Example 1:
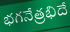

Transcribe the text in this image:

భగనేత్రభిదే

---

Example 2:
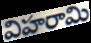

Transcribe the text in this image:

విహరామి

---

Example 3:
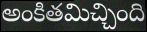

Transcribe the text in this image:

అంకితమిచ్చింది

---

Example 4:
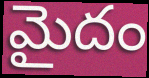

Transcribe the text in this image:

మైదం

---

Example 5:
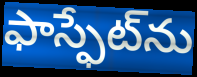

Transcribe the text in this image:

ఫాస్ఫేట్‌ను